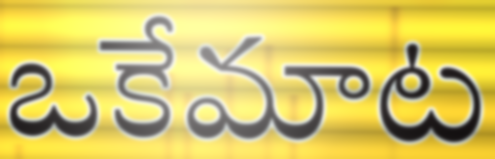
ఒకేమాట